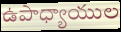
ఉపాధ్యాయుల